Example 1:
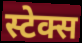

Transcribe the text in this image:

स्टेक्स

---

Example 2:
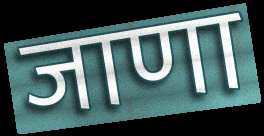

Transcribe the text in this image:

जाणा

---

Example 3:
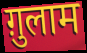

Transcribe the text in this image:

ग़ुलाम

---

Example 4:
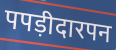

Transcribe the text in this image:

पपड़ीदारपन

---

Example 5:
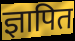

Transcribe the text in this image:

ज्ञापित